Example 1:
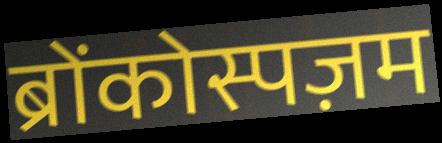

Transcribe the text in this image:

ब्रोंकोस्पज़म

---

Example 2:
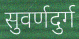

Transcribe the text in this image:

सुवर्णदुर्ग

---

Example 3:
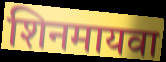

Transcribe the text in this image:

शिनमायवा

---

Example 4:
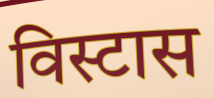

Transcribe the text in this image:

विस्टास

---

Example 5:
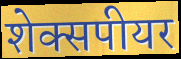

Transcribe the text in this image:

शेक्सपीयर